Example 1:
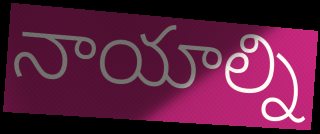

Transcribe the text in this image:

నాయాల్ని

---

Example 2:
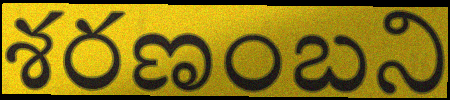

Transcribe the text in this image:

శరణంబని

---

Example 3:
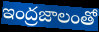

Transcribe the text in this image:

ఇంద్రజాలంతో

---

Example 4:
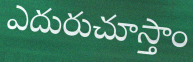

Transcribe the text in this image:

ఎదురుచూస్తాం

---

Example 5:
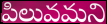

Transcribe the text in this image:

పిలువమని